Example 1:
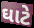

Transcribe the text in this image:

ઘાટે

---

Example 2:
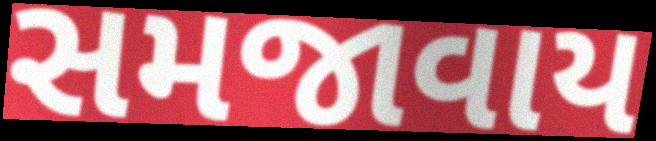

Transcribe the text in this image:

સમજાવાય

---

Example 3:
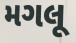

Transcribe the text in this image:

મગલૂ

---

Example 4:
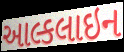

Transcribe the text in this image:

આલ્કલાઇન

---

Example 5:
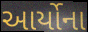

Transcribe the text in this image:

આર્યોના